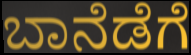
ಬಾನೆಡೆಗೆ